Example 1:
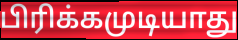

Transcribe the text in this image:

பிரிக்கமுடியாது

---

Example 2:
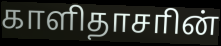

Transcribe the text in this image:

காளிதாசரின்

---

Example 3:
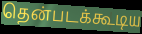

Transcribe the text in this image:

தென்படக்கூடிய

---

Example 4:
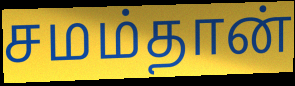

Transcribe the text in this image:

சமம்தான்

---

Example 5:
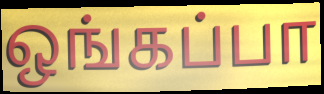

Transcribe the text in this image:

ஒங்கப்பா